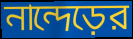
নান্দেড়ের